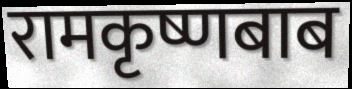
रामकृष्णबाब